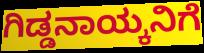
ಗಿಡ್ಡನಾಯ್ಕನಿಗೆ